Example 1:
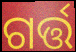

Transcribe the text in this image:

ଗର୍ତ୍ତ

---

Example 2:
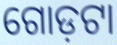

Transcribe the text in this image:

ଗୋଡ଼ଟା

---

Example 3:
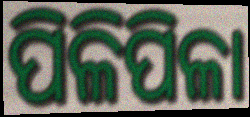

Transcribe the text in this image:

ପିଳିପିଳା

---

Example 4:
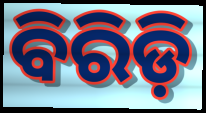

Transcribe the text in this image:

ବିରିଡ଼ି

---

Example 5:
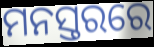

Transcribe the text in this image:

ମନସ୍ତରରେ